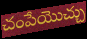
చంపేయొచ్చు